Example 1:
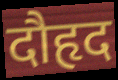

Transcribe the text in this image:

दौहृद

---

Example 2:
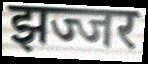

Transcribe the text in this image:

झज्जर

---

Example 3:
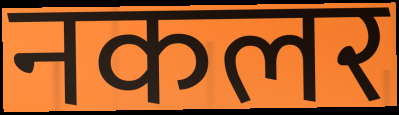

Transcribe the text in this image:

नकलर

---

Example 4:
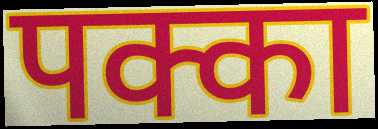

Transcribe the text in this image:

पक्का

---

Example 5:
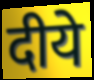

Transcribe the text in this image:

दीये